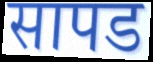
सापड